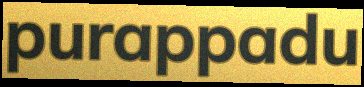
purappadu